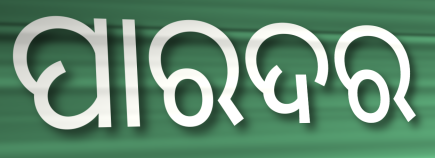
ପାରଦର